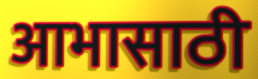
आभासाठी